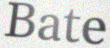
Bate